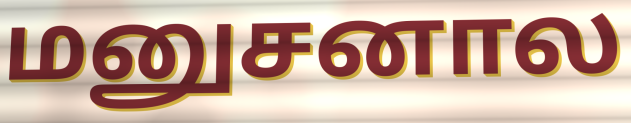
மனுசனால